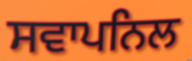
ਸਵਾਪਨਿਲ